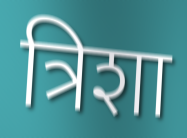
त्रिशा